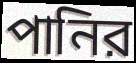
পানির